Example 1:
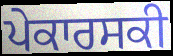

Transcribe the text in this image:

ਪੇਕਾਰਸਕੀ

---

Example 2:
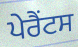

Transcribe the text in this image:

ਪੇਰੈਂਟਸ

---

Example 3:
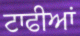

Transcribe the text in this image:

ਟਾਫੀਆਂ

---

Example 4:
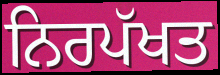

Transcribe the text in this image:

ਨਿਰਪੱਖਤ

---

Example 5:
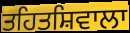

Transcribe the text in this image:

ਤਹਿਤਸ਼ਿਵਾਲਾ